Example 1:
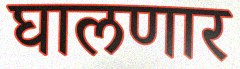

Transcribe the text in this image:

घालणार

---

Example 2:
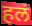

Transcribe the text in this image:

हलं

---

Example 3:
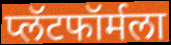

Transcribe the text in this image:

प्लॅटफॉर्मला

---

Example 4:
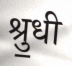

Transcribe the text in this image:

श्रु॒धी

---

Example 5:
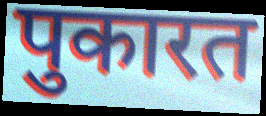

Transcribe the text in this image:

पुकारत